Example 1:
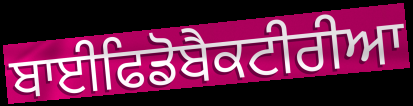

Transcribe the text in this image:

ਬਾਈਫਿਡੋਬੈਕਟੀਰੀਆ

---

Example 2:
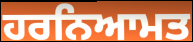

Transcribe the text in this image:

ਹਰਨਿਆਮਤ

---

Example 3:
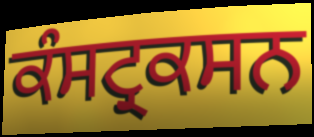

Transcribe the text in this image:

ਕੰਸਟ੍ਰਕਸਨ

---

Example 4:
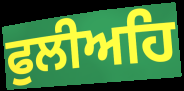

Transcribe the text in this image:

ਫੁਲੀਅਹਿ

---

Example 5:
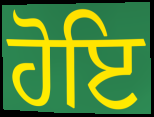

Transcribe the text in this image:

ਹੋਇ